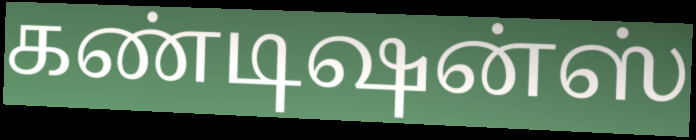
கண்டிஷன்ஸ்